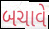
બચાવે